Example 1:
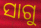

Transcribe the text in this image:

ସାଗୁ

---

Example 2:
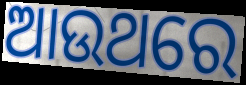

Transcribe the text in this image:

ଆଉଥରେ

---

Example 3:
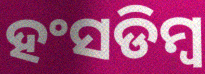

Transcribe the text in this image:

ହଂସଡିମ୍ବ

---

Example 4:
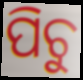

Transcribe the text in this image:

ପିଚୁ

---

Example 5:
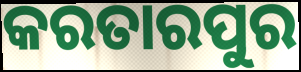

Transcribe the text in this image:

କରତାରପୁର